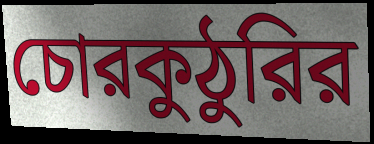
চোরকুঠুরির